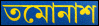
তমোনাশ